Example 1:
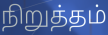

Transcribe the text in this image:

நிறுத்தம்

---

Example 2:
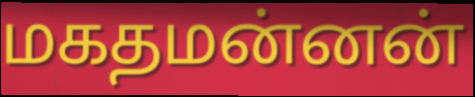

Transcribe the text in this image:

மகதமன்னன்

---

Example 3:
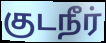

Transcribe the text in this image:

குடநீர்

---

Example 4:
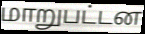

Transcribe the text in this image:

மாறுபட்டன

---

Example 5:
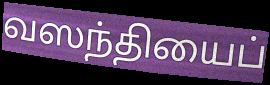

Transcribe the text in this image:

வஸந்தியைப்